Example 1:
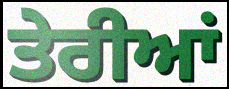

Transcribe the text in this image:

ਤੇਰੀਆਂ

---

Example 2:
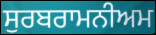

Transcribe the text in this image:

ਸੁਰਬਰਾਮਨੀਅਮ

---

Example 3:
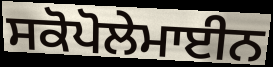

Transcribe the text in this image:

ਸਕੋਪੋਲੇਮਾਈਨ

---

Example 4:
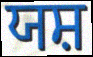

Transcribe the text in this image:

ਯਸ਼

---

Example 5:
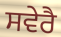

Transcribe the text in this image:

ਸਵੇਰੈ